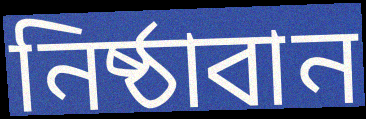
নিষ্ঠাবান